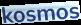
kosmos